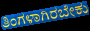
ತಿಂಗಳಾಗಿರಬೇಕು